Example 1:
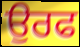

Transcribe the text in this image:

ਉਰਫ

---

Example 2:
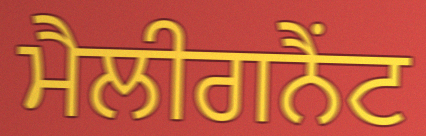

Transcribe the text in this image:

ਮੈਲੀਗਨੈਂਟ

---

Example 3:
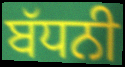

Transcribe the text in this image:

ਬੱਧਨੀ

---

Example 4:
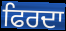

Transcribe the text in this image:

ਫਿਰਦਾ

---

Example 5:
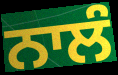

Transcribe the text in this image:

ਨਾਲੰ